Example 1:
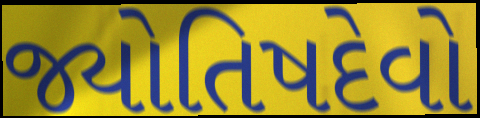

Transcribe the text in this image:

જ્યોતિષદેવો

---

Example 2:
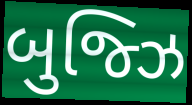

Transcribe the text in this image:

બુજ્ઝિ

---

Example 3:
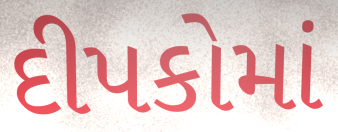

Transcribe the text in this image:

દીપકોમાં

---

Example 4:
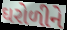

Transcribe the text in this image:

ઘરોળીને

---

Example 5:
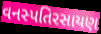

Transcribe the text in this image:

વનસ્પતિરસાયણ